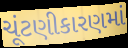
ચૂંટણીકારણમાં